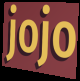
jojo